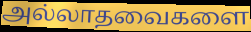
அல்லாதவைகளை